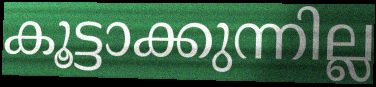
കൂട്ടാക്കുന്നില്ല